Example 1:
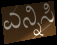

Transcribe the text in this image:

ಎನ್ನಿಸಿ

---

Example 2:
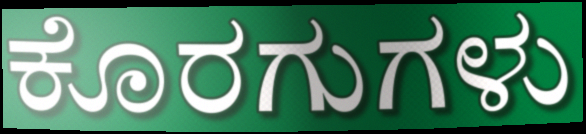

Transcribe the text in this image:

ಕೊರಗುಗಳು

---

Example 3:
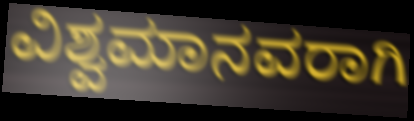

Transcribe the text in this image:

ವಿಶ್ವಮಾನವರಾಗಿ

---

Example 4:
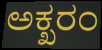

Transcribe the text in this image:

ಅಕ್ಖರಂ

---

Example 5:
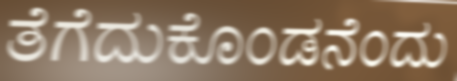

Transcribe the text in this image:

ತೆಗೆದುಕೊಂಡನೆಂದು